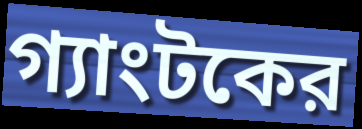
গ্যাংটকের